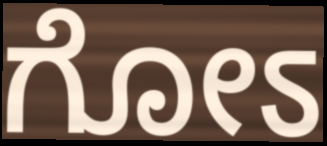
ಗೋಽ